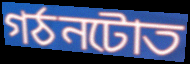
গঠনটোত